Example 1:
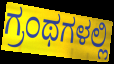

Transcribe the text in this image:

ಗ್ರಂಥಗಳಲ್ಲಿ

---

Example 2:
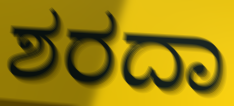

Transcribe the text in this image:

ಶರದಾ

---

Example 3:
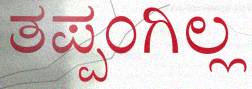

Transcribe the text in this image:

ತಪ್ಪಂಗಿಲ್ಲ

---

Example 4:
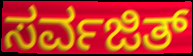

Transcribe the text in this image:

ಸರ್ವಜಿತ್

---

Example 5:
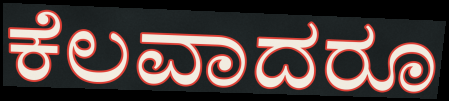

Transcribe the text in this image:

ಕೆಲವಾದರೂ